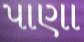
પાણા